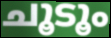
ചൂടൂം